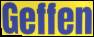
Geffen